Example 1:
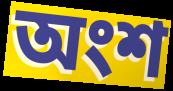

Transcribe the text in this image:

অংশ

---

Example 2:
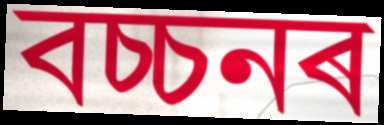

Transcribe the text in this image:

বচ্চনৰ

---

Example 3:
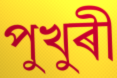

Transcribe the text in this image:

পুখুৰী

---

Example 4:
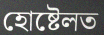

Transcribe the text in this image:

হোষ্টেলত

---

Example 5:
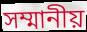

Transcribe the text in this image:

সম্মানীয়